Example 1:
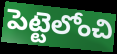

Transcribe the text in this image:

పెట్టెలోంచి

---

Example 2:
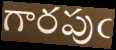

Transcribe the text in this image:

గారపుఁ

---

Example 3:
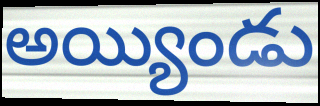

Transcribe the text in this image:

అయ్యిండు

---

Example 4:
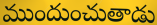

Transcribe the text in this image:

ముందుంచుతాడు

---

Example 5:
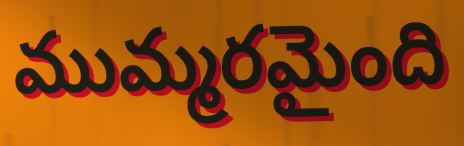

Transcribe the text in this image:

ముమ్మరమైంది